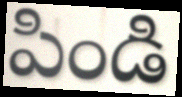
పిండి